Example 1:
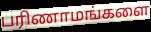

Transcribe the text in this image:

பரிணாமங்களை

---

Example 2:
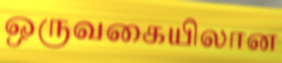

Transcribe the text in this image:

ஒருவகையிலான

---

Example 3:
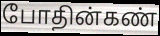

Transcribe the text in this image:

போதின்கண்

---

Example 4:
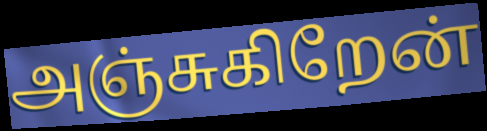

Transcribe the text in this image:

அஞ்சுகிறேன்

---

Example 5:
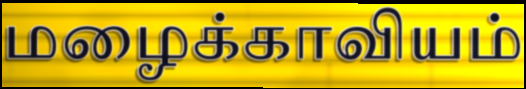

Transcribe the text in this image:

மழைக்காவியம்